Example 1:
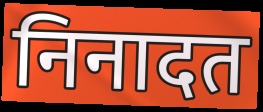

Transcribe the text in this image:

निनादत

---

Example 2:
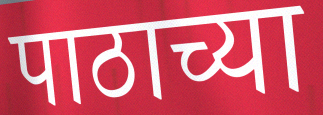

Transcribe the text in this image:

पाठाच्या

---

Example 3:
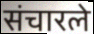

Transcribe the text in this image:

संचारले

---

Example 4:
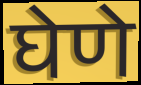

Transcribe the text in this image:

घेणे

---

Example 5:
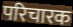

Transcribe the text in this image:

परिचारक